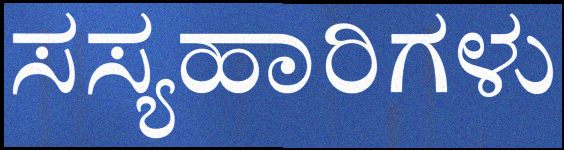
ಸಸ್ಯಹಾರಿಗಳು